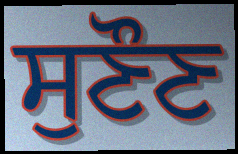
ਸੁਣੌਣ